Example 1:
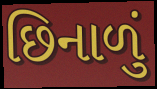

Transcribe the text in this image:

છિનાળું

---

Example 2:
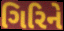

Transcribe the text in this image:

ગિરિને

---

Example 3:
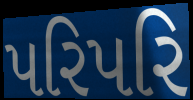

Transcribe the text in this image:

પરિપરિ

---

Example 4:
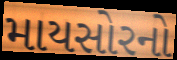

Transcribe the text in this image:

માયસોરનો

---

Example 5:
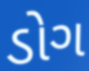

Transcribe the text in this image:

ડોગ